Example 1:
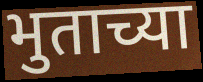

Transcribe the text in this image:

भुताच्या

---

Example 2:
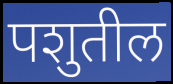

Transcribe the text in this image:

पशुतील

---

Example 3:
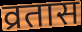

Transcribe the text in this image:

व्रतास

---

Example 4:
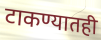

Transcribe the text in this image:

टाकण्यातही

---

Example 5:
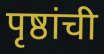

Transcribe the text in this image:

पृष्ठांची